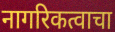
नागरिकत्वाचा